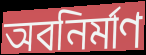
অবনির্মাণ